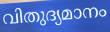
വിതുദ്യമാനം